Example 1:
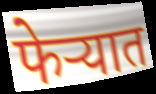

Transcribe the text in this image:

फेऱ्यात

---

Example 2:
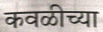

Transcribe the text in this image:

कवळीच्या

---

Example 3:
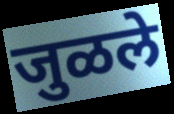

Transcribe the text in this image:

जुळले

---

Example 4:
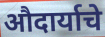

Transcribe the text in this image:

औदार्याचे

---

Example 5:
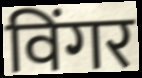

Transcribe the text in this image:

विंगर